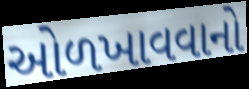
ઓળખાવવાનો